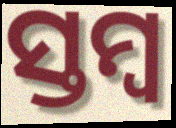
ସ୍ତମ୍ବ